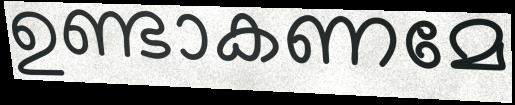
ഉണ്ടാകണമേ